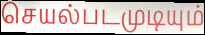
செயல்படமுடியும்